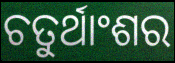
ଚତୁର୍ଥାଂଶର